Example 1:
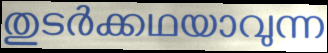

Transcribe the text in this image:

തുടർക്കഥയാവുന്ന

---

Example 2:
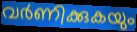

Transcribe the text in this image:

വർണിക്കുകയും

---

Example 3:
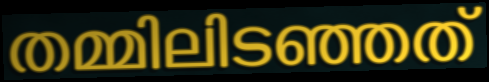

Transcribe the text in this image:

തമ്മിലിടഞ്ഞത്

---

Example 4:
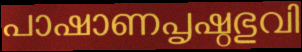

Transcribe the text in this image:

പാഷാണപൃഷ്ഠഭുവി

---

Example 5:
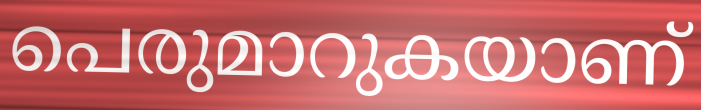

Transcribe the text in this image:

പെരുമാറുകയാണ്